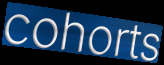
cohorts